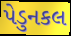
પેડુનકલ